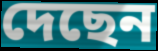
দেছেন